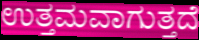
ಉತ್ತಮವಾಗುತ್ತದೆ